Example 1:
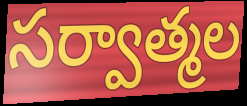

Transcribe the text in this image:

సర్వాత్మల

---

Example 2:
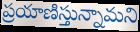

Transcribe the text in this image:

ప్రయాణిస్తున్నామని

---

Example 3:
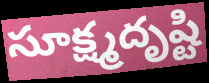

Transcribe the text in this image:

సూక్ష్మదృష్టి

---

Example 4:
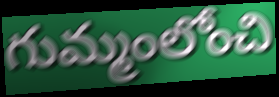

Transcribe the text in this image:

గుమ్మంలోంచి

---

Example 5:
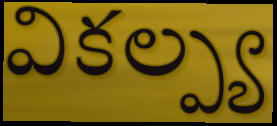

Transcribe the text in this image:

వికల్ప్య